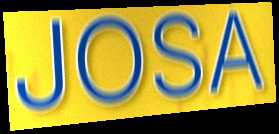
JOSA